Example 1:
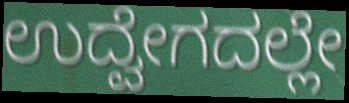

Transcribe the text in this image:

ಉದ್ವೇಗದಲ್ಲೇ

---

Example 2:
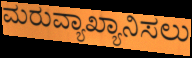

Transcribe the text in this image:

ಮರುವ್ಯಾಖ್ಯಾನಿಸಲು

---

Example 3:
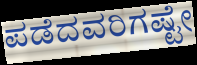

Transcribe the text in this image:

ಪಡೆದವರಿಗಷ್ಟೇ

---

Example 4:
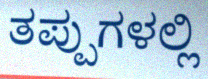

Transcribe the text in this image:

ತಪ್ಪುಗಳಲ್ಲಿ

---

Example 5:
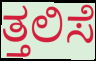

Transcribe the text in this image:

ತ್ತಲಿಸೆ